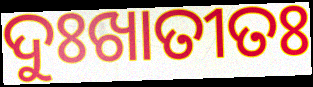
ଦୁଃଖାତୀତଃ